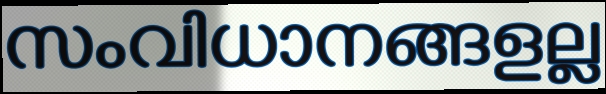
സംവിധാനങ്ങളല്ല